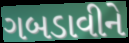
ગબડાવીને